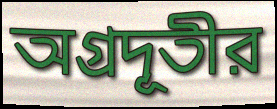
অগ্রদূতীর